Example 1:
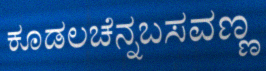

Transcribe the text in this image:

ಕೂಡಲಚೆನ್ನಬಸವಣ್ಣ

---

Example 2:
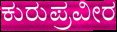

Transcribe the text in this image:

ಕುರುಪ್ರವೀರ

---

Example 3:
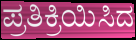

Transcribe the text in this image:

ಪ್ರತಿಕ್ರಿಯಿಸಿದ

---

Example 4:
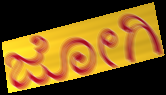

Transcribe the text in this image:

ಜೋಗಿ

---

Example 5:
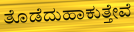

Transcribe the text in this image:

ತೊಡೆದುಹಾಕುತ್ತೇವೆ